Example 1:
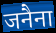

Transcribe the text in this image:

जनैना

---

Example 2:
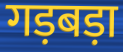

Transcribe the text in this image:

गड़बड़ा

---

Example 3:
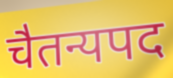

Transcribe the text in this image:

चैतन्यपद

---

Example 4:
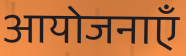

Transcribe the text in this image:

आयोजनाएँ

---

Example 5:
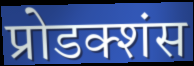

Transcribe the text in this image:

प्रोडक्शंस